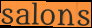
salons